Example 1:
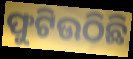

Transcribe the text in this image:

ଫୁଟିଉଠିଛି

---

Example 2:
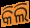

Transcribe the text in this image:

କିଲି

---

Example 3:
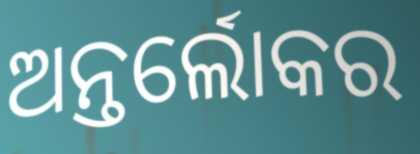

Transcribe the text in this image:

ଅନ୍ତର୍ଲୋକର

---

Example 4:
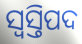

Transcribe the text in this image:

ସ୍ବସ୍ତିପଦ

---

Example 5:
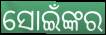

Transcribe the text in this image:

ସୋଇଁଙ୍କର